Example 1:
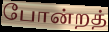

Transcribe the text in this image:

போன்றத்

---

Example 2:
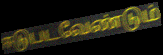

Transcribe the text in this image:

ஈடுபடவேண்டும்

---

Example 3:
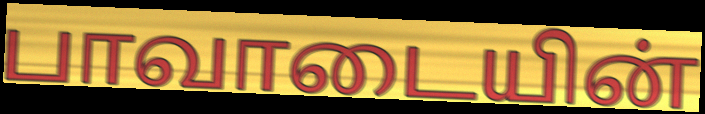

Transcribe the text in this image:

பாவாடையின்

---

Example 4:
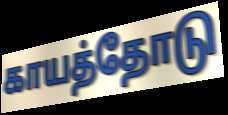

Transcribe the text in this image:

காயத்தோடு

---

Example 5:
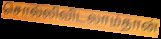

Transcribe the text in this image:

சொல்லிவிடலாம்தான்